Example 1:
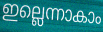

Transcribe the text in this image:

ഇല്ലെന്നാകാം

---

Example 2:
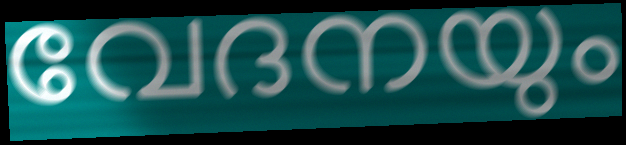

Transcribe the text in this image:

വേദനയും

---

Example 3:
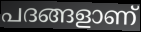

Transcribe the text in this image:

പദങ്ങളാണ്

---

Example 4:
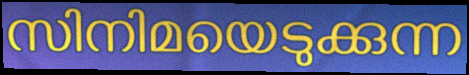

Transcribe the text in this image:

സിനിമയെടുക്കുന്ന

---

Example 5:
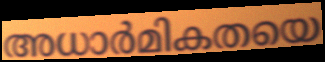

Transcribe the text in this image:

അധാർമികതയെ